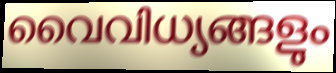
വൈവിധ്യങ്ങളും